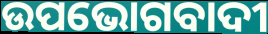
ଉପଭୋଗବାଦୀ